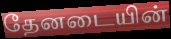
தேனடையின்